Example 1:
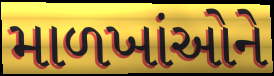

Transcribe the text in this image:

માળખાંઓને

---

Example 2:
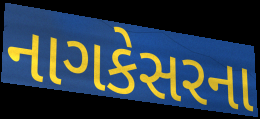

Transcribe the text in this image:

નાગકેસરના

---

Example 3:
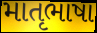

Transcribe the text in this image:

માતૃભાષા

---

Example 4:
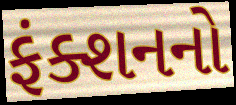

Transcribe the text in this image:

ફંક્શનનો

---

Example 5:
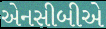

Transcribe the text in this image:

એનસીબીએ